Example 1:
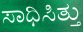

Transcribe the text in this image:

ಸಾಧಿಸಿತ್ತು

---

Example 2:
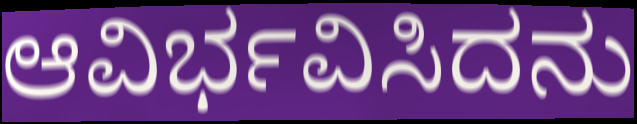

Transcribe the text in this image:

ಆವಿರ್ಭವಿಸಿದನು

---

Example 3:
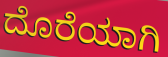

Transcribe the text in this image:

ದೊರೆಯಾಗಿ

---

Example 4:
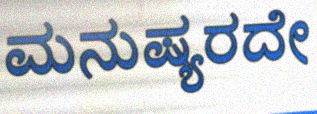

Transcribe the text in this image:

ಮನುಷ್ಯರದೇ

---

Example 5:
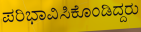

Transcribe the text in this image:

ಪರಿಭಾವಿಸಿಕೊಂಡಿದ್ದರು